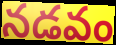
నడవం